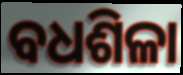
ବଧଶିଳା